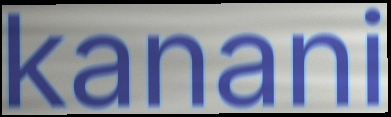
kanani